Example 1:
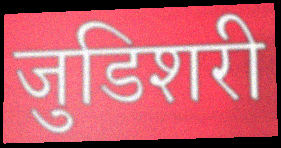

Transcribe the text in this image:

जुडिशरी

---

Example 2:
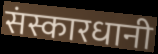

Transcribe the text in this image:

संस्कारधानी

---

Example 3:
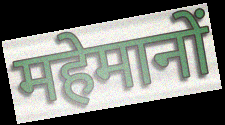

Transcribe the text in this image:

महेमानों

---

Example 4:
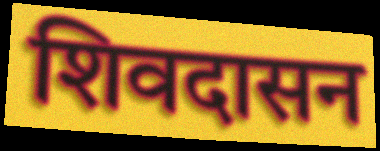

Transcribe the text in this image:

शिवदासन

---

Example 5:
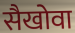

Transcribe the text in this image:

सैखोवा